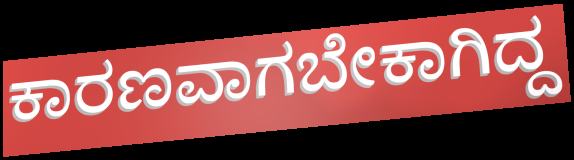
ಕಾರಣವಾಗಬೇಕಾಗಿದ್ದ